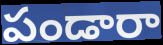
పండారా